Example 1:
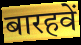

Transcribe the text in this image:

बारहवें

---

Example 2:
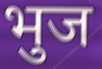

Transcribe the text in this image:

भुज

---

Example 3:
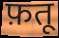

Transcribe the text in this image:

फ़तू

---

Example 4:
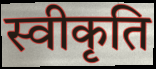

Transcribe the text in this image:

स्‍वीकृति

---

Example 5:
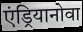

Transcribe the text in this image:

एंड्रियानोवा